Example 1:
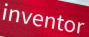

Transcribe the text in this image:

inventor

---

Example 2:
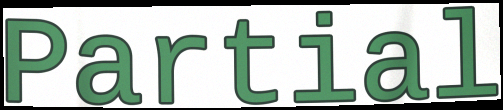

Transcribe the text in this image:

Partial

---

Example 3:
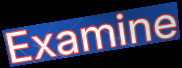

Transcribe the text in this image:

Examine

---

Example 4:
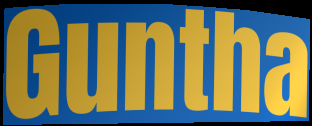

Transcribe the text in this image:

Guntha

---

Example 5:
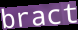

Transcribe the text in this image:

bract